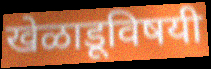
खेळाडूविषयी